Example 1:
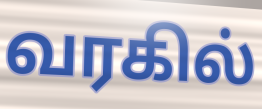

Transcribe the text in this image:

வரகில்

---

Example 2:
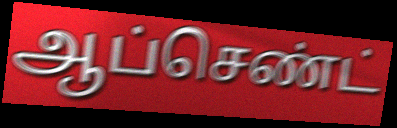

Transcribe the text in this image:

ஆப்செண்ட்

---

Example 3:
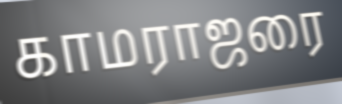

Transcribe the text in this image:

காமராஜரை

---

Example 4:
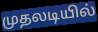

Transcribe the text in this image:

முதலடியில்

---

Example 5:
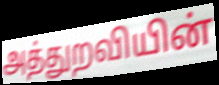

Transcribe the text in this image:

அத்துறவியின்